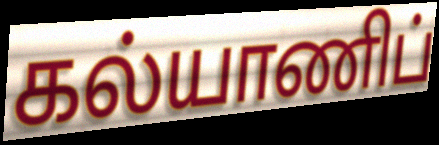
கல்யாணிப்